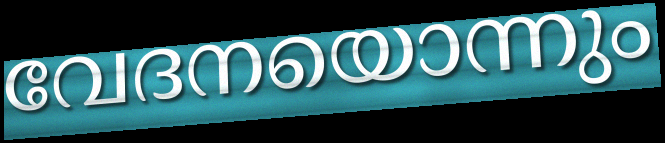
വേദനയൊന്നും